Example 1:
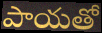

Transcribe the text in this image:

పాయతో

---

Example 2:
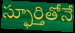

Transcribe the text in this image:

స్ఫూర్తితోనే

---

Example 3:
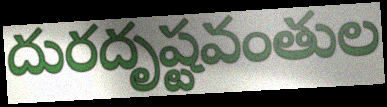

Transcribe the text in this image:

దురదృష్టవంతుల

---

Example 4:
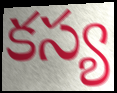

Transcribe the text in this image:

కస్య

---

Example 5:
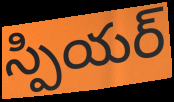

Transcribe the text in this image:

స్పియర్